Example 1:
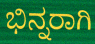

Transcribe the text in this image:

ಭಿನ್ನರಾಗಿ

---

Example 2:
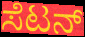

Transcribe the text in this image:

ಸೆಟನ್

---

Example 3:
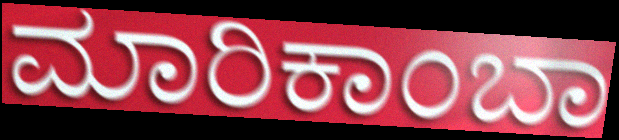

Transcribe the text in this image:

ಮಾರಿಕಾಂಬಾ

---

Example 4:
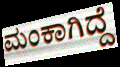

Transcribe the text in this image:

ಮಂಕಾಗಿದ್ದೆ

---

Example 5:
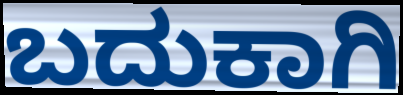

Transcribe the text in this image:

ಬದುಕಾಗಿ